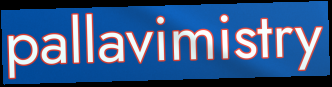
pallavimistry